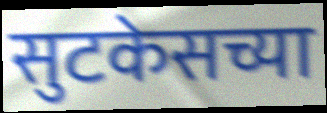
सुटकेसच्या